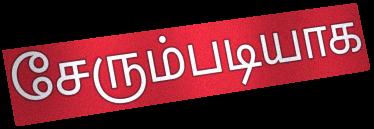
சேரும்படியாக